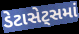
ડેટાસેટ્સમાં